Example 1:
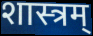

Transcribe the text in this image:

शास्त्रम्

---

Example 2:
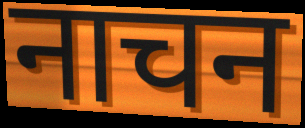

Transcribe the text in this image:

नाचन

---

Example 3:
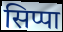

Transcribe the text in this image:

सिप्पा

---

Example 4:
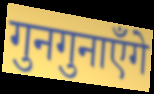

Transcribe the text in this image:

गुनगुनाएँगे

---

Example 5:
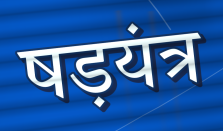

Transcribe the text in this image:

षड़यंत्र